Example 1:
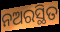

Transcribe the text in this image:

ନଅରସ୍ଥିତ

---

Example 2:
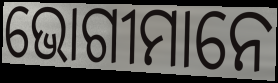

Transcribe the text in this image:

ଭୋଗୀମାନେ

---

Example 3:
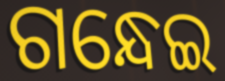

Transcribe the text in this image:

ଗନ୍ଧେଇ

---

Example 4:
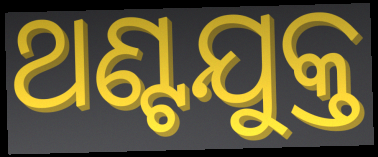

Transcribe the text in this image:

ଥଣ୍ଟଯୁକ୍ତ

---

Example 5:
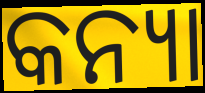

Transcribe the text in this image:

କନ୍ୟା